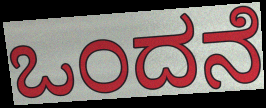
ಒಂದನೆ